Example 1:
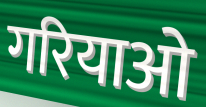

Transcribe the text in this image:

गरियाओ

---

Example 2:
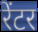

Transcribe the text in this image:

रेंटर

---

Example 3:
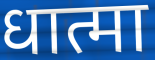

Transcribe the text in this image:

धात्मा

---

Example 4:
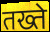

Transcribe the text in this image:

तख्ते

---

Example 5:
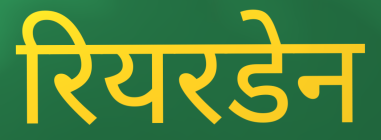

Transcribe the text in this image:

रियरडेन